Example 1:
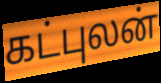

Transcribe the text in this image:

கட்புலன்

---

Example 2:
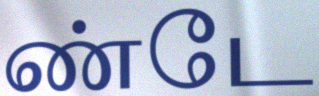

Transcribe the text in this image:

ண்டே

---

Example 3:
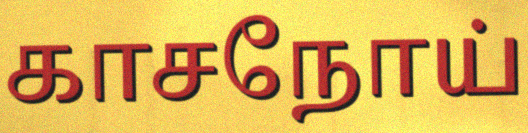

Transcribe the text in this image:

காசநோய்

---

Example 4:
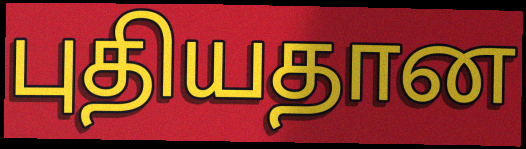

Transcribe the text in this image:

புதியதான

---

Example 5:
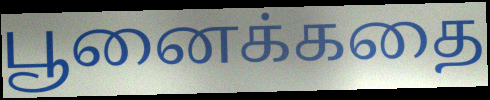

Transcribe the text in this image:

பூனைக்கதை